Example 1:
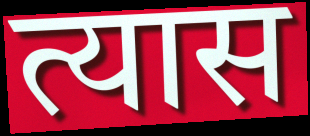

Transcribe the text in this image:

त्यास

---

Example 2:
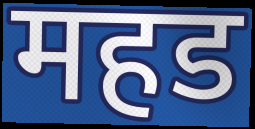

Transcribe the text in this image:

महड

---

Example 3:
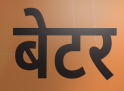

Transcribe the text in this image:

बेटर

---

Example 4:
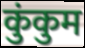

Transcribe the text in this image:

कुंकुम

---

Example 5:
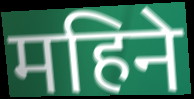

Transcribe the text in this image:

महिने